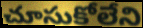
చూసుకోలేని